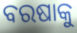
ବରଷାକୁ